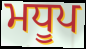
ਮਧੂਪ